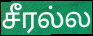
சீரல்ல